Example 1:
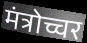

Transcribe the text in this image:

मंत्रोच्चर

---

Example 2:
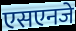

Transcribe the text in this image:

एसएनजे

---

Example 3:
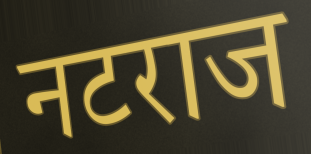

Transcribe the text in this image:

नटराज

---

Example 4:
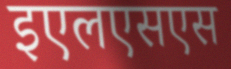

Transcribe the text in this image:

इएलएसएस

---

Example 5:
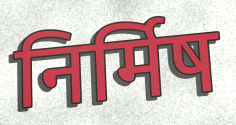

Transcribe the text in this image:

निर्मिष